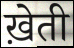
ख़ेती